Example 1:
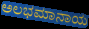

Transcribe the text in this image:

ಅಲಭಮಾನಾಯ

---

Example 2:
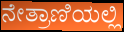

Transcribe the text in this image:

ನೇತ್ರಾಣಿಯಲ್ಲಿ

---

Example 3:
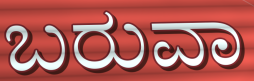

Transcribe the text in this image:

ಬರುವಾ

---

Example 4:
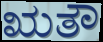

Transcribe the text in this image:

ಋತೌ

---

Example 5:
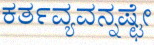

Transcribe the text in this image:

ಕರ್ತವ್ಯವನ್ನಷ್ಟೇ